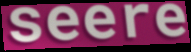
seere